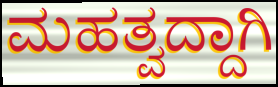
ಮಹತ್ವದ್ದಾಗಿ